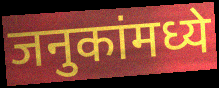
जनुकांमध्ये